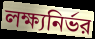
লক্ষ্যনির্ভর